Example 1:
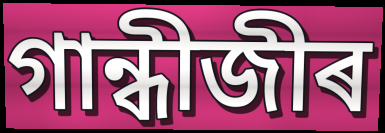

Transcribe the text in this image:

গান্ধীজীৰ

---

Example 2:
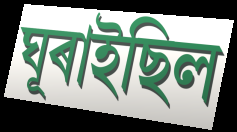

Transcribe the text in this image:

ঘূৰাইছিল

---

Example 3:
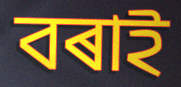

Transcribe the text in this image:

বৰাই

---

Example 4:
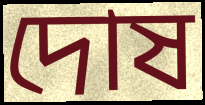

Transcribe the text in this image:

দোষ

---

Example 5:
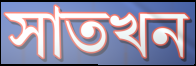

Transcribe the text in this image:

সাতখন